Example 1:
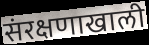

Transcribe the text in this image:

संरक्षणाखाली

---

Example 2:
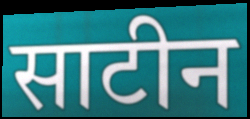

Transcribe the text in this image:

साटीन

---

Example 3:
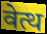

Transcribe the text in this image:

वेत्थ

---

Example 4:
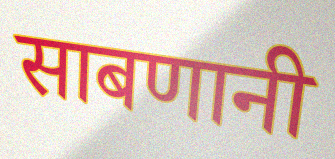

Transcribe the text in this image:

साबणानी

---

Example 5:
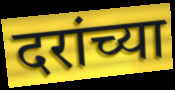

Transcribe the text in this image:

दरांच्या